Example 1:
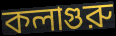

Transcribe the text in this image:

কলাগুৰু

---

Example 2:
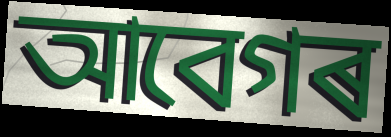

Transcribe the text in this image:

আবেগৰ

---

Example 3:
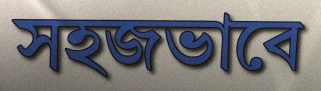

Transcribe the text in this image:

সহজভাবে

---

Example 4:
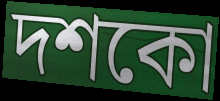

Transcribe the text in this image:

দশকো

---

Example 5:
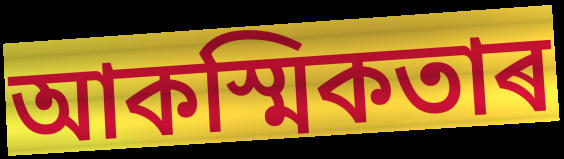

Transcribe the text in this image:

আকস্মিকতাৰ